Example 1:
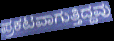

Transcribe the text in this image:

ಪ್ರಕಟವಾಗುತ್ತಿದ್ದವು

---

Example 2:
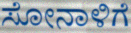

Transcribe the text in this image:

ಸೋನಾಳಿಗೆ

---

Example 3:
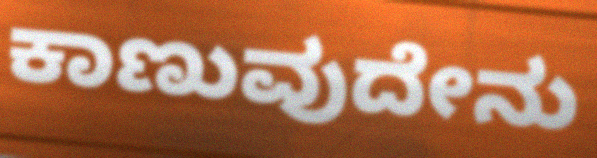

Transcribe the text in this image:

ಕಾಣುವುದೇನು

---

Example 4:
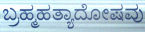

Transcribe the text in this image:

ಬ್ರಹ್ಮಹತ್ಯಾದೋಷವು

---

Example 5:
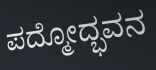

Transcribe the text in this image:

ಪದ್ಮೋದ್ಭವನ